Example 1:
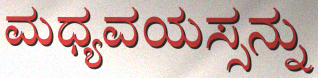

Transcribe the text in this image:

ಮಧ್ಯವಯಸ್ಸನ್ನು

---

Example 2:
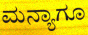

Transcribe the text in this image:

ಮನ್ಯಾಗೂ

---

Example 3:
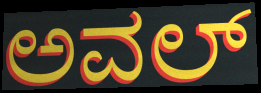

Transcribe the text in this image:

ಅವಲ್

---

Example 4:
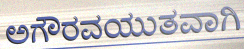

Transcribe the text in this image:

ಅಗೌರವಯುತವಾಗಿ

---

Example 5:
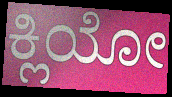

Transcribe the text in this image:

ಕ್ಲಿಯೋ